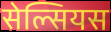
सेल्सियस